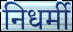
निधर्मी